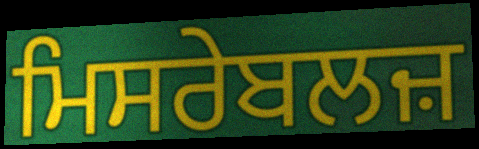
ਮਿਸਰੇਬਲਜ਼